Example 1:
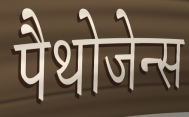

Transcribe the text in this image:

पैथोजेन्स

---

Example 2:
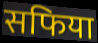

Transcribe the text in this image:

सफिया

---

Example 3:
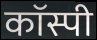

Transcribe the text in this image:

कॉस्पी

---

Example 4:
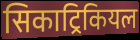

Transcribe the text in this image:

सिकाट्रिकियल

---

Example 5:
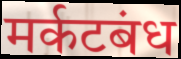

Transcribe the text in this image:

मर्कटबंध